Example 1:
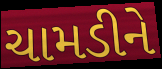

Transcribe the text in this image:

ચામડીને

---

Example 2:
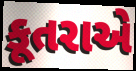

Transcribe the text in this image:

કૂતરાએ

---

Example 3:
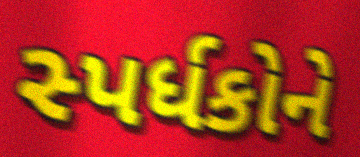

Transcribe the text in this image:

સ્પર્ધકોને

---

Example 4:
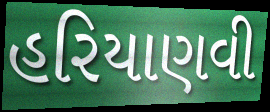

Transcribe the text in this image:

હરિયાણવી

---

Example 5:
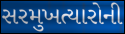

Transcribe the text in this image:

સરમુખત્યારોની